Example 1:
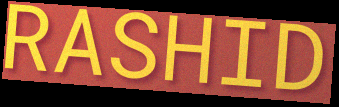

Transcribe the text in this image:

RASHID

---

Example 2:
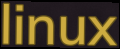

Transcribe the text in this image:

linux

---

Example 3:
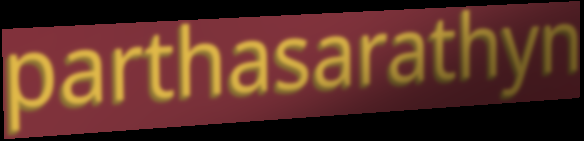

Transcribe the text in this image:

parthasarathyn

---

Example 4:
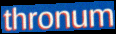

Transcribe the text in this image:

thronum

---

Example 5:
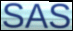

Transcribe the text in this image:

SAS